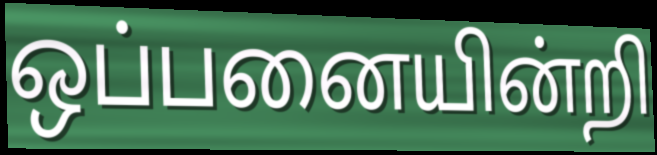
ஒப்பனையின்றி